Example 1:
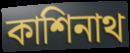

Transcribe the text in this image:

কাশিনাথ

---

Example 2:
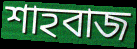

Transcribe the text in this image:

শাহবাজ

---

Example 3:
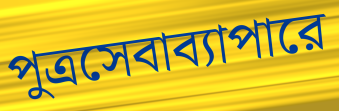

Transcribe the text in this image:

পুত্রসেবাব্যাপারে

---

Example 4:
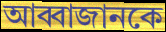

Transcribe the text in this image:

আব্বাজানকে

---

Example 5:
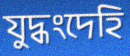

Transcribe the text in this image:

যুদ্ধংদেহি